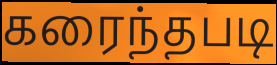
கரைந்தபடி